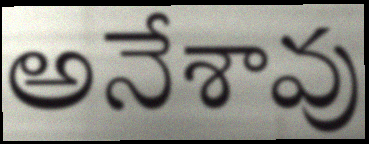
అనేశావు